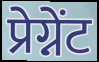
प्रेग्नेंट